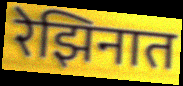
रेझिनात